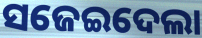
ସଜେଇଦେଲା